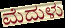
ಮೆದುಳು